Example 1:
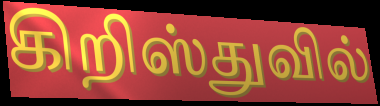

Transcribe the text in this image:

கிறிஸ்துவில்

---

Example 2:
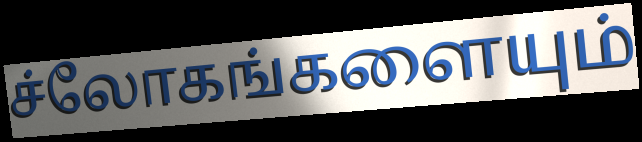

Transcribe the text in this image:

ச்லோகங்களையும்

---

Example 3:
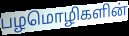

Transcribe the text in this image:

பழமொழிகளின்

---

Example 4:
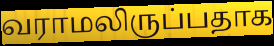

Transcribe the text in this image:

வராமலிருப்பதாக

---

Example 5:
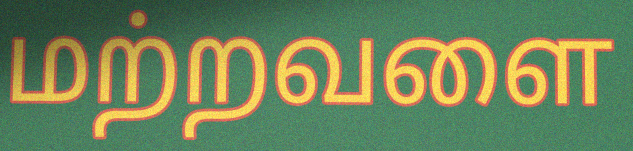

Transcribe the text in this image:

மற்றவளை